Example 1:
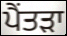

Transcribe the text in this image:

ਪੈਂਤੜਾ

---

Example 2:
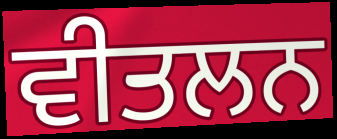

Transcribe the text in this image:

ਵੀਤਲਨ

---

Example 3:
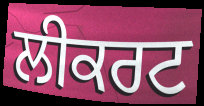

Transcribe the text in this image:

ਲੀਕਰਟ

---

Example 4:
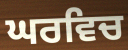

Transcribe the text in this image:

ਘਰਵਿਚ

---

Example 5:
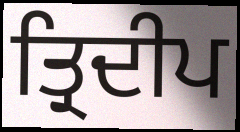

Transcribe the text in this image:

ਤ੍ਰਿਦੀਪ